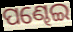
ପଣ୍ଢେଇ